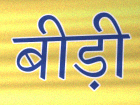
बीड़ी